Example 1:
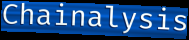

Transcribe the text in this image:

Chainalysis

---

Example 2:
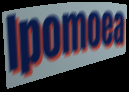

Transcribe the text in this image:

Ipomoea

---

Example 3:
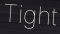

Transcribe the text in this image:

Tight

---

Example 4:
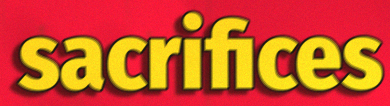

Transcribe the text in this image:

sacrifices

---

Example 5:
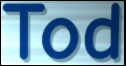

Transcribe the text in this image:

Tod